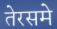
तेरसमे